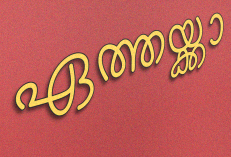
ഏത്തയ്ക്കാ